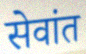
सेवांत